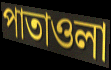
পাতাওলা